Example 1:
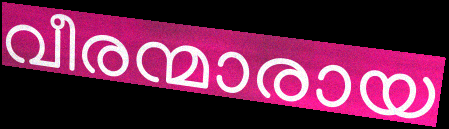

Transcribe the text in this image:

വീരന്മാരായ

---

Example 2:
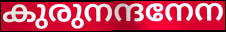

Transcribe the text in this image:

കുരുനന്ദനേന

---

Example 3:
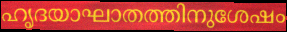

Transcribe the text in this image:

ഹൃദയാഘാതത്തിനുശേഷം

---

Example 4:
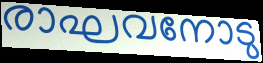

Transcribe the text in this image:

രാഘവനോടു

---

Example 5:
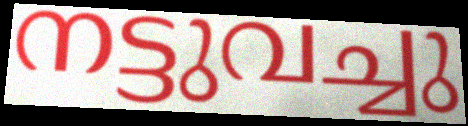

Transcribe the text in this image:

നട്ടുവച്ചു